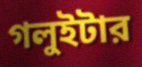
গলুইটার